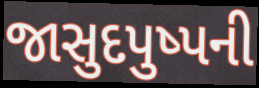
જાસુદપુષ્પની